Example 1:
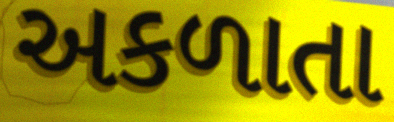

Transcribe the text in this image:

અકળાતા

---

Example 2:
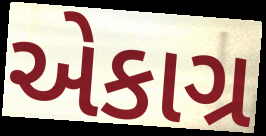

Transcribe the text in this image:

એકાગ્ર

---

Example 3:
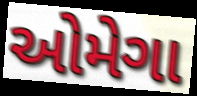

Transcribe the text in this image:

ઓમેગા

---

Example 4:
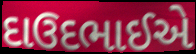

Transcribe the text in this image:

દાઉદભાઈએ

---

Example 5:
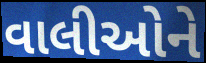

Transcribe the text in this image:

વાલીઓને